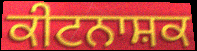
ਕੀਟਨਾਸ਼ਕ